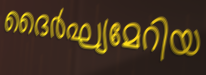
ദൈർഘ്യമേറിയ